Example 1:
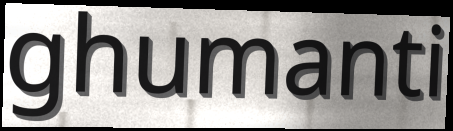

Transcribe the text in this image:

ghumanti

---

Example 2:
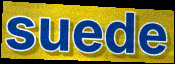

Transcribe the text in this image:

suede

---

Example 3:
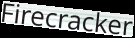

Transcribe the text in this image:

Firecracker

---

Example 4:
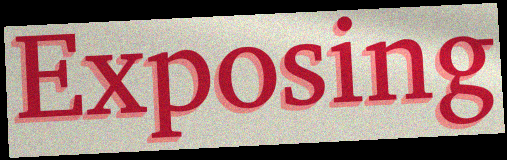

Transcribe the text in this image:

Exposing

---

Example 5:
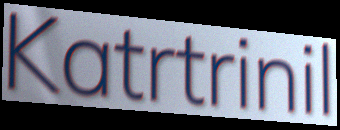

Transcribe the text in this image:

Katrtrinil